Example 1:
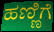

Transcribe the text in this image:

ಹಣ್ಣಿಗೆ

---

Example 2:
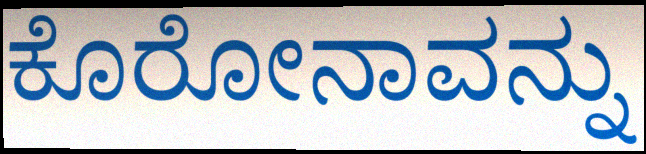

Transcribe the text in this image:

ಕೊರೋನಾವನ್ನು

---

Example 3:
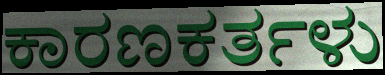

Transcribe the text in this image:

ಕಾರಣಕರ್ತಳು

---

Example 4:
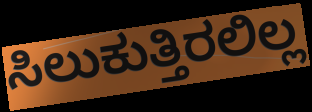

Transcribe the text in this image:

ಸಿಲುಕುತ್ತಿರಲಿಲ್ಲ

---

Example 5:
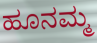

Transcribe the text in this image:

ಹೂನಮ್ಮ